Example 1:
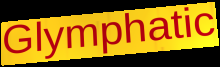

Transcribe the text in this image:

Glymphatic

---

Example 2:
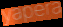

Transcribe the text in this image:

yapera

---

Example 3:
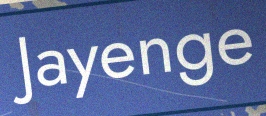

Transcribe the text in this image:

Jayenge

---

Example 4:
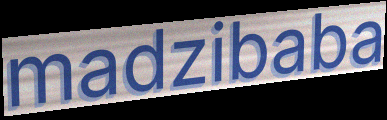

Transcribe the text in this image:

madzibaba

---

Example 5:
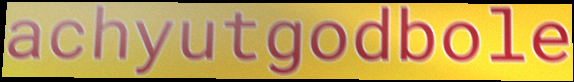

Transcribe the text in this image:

achyutgodbole